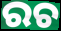
ରଚ